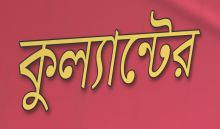
কুল্যান্টের